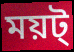
ময়ট্